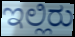
ಇಲ್ಲಿರು